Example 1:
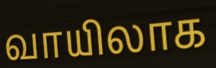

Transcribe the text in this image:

வாயிலாக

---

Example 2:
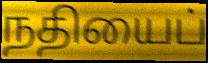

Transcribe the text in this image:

நதியைப்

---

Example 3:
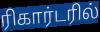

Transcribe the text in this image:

ரிகார்டரில்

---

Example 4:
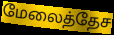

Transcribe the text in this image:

மேலைத்தேச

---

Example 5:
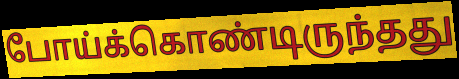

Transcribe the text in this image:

போய்க்கொண்டிருந்தது